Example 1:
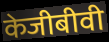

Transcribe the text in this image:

केजीबीवी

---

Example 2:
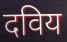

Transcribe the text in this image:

दविय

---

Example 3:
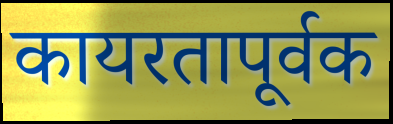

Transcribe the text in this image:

कायरतापूर्वक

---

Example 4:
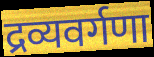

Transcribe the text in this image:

द्रव्यवर्गणा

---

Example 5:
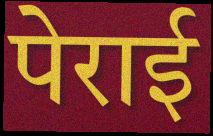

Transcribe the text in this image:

पेराई